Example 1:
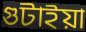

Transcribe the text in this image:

গুটাইয়া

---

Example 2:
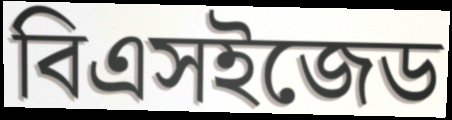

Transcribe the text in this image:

বিএসইজেড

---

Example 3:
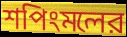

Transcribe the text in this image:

শপিংমলের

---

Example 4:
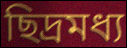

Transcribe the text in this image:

ছিদ্রমধ্য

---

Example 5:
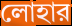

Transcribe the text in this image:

লোহার